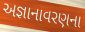
અજ્ઞાનાવરણના